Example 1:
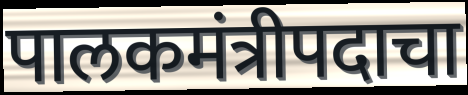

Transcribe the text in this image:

पालकमंत्रीपदाचा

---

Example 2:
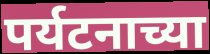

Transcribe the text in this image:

पर्यटनाच्या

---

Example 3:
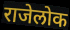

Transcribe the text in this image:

राजेलोक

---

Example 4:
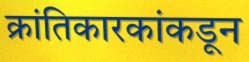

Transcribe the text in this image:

क्रांतिकारकांकडून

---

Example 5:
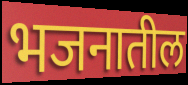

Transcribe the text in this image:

भजनातील